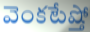
వెంకటేష్తో